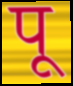
पू